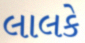
લાલકે